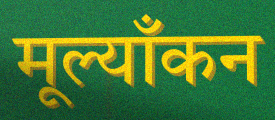
मूल्याँकन